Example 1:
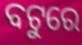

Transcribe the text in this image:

ବଟୁରେ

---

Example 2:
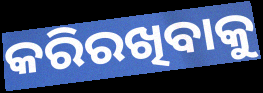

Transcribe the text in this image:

କରିରଖିବାକୁ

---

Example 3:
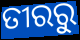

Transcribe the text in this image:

ତୀରରୁ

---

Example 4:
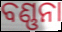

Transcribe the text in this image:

ବଣ୍ଣନା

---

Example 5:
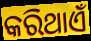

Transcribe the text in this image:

କରିଥାଏଁ